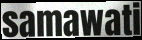
samawati